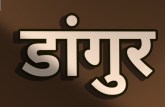
डांगुर